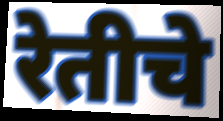
रेतीचे